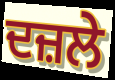
ਦਜ਼ਲੇ